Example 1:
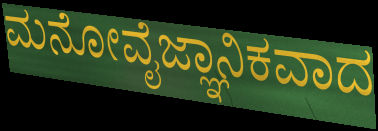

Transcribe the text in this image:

ಮನೋವೈಜ್ಞಾನಿಕವಾದ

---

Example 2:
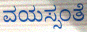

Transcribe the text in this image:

ವಯಸ್ಸಂತೆ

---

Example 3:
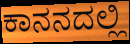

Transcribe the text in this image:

ಕಾನನದಲ್ಲಿ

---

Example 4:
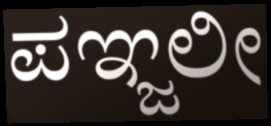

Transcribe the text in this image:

ಪಞ್ಜಲೀ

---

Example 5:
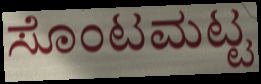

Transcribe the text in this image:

ಸೊಂಟಮಟ್ಟ